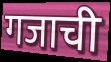
गजाची